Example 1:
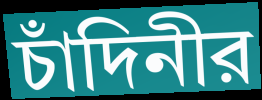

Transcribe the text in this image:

চাঁদিনীর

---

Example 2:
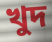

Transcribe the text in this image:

খুদ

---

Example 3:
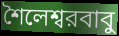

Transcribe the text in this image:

শৈলেশ্বরবাবু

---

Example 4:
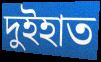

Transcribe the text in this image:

দুইহাত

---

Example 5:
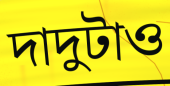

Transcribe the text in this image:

দাদুটাও